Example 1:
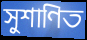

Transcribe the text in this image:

সুশাণিত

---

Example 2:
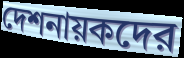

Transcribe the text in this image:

দেশনায়কদের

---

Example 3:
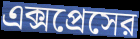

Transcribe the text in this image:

এক্সপ্রেসের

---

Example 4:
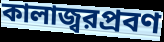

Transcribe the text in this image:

কালাজ্বরপ্রবণ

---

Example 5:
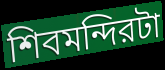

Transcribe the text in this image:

শিবমন্দিরটা